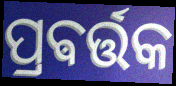
ପ୍ରଵର୍ତ୍ତକ